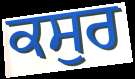
ਕਸੁਰ